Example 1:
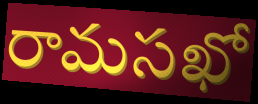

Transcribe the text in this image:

రామసఖో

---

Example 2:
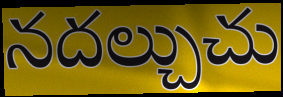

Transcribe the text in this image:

నదల్చుచు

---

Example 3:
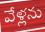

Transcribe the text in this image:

వేళ్లను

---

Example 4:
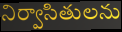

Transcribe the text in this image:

నిర్వాసితులను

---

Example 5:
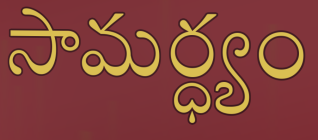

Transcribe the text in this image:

సామర్ధ్యం